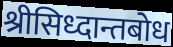
श्रीसिध्दान्तबोध